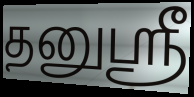
தனுஸ்ரீ